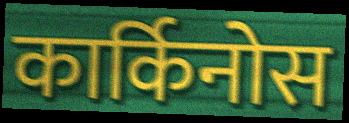
कार्किनोस